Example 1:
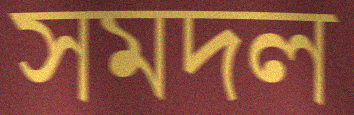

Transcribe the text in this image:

সমদল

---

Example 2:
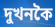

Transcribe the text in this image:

দুখনকৈ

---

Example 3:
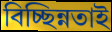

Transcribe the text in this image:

বিচ্ছিন্নতাই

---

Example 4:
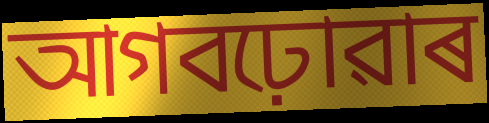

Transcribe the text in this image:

আগবঢ়োৱাৰ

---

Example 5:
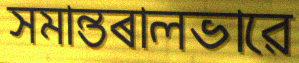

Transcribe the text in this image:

সমান্তৰালভাৱে